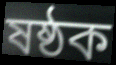
ষষ্ঠক